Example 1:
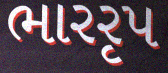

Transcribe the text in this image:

ભારરૃપ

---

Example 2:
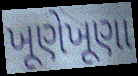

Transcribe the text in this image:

ખૂણેખૂણા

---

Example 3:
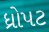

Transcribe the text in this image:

ધ્રોપટ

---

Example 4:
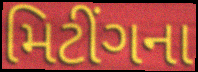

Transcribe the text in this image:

મિટીંગના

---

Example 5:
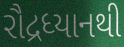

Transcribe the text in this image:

રૌદ્રધ્યાનથી